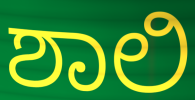
ಶಾಲಿ